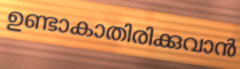
ഉണ്ടാകാതിരിക്കുവാൻ